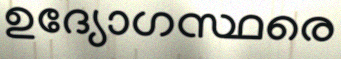
ഉദ്യോഗസ്ഥരെ